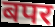
बपर